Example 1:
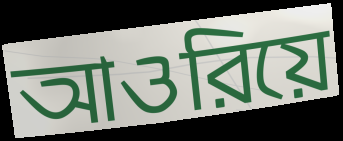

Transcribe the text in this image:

আওরিয়ে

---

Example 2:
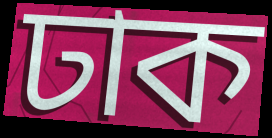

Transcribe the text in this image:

ঢাক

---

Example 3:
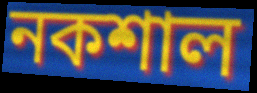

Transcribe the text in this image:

নকশাল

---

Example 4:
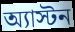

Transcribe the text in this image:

অ্যাস্টন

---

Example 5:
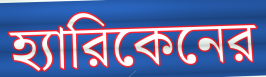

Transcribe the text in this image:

হ্যারিকেনের